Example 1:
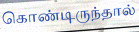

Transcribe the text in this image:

கொண்டிருந்தால்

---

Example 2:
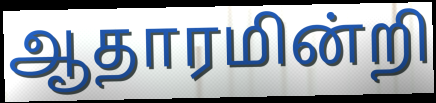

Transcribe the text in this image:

ஆதாரமின்றி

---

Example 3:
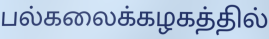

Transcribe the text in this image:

பல்கலைக்கழகத்தில்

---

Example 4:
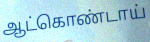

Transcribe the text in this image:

ஆட்கொண்டாய்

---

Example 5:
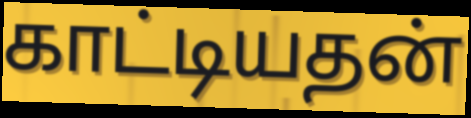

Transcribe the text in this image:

காட்டியதன்